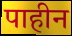
पाहीन